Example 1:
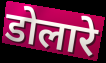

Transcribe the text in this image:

डोलारे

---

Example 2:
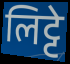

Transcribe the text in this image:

लिट्टे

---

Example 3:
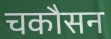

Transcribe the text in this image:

चकौसन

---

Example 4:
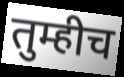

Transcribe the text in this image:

तुम्हीच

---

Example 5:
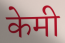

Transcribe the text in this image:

केमी